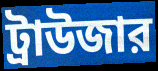
ট্রাউজার